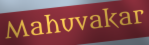
Mahuvakar